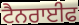
ਟੈਨਰਾਈਫ